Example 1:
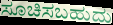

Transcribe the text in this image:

ಸೂಚಿಸಬಹುದು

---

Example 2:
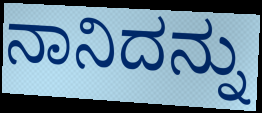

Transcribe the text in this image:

ನಾನಿದನ್ನು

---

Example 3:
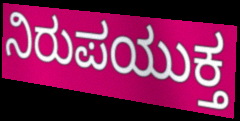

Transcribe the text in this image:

ನಿರುಪಯುಕ್ತ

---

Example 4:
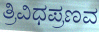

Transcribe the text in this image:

ತ್ರಿವಿಧಪ್ರಣವ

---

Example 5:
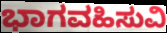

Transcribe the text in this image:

ಭಾಗವಹಿಸುವಿ